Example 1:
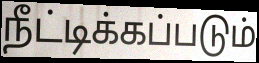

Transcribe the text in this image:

நீட்டிக்கப்படும்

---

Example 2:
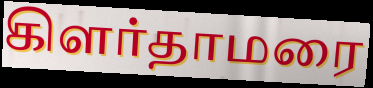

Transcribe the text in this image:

கிளர்தாமரை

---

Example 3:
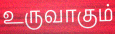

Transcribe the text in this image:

உருவாகும்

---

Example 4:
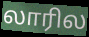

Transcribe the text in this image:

லாரில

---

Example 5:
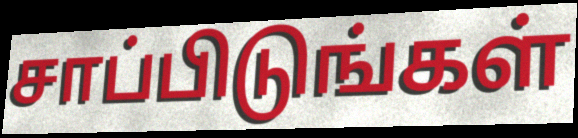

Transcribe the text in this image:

சாப்பிடுங்கள்